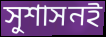
সুশাসনই